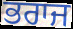
ਭਰਾਜ